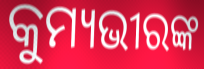
କୁମ୍ୟଭୀରଙ୍କ